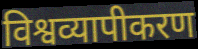
विश्वव्यापीकरण